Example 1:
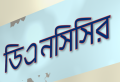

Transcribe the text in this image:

ডিএনসিসির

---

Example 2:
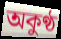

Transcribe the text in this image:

অকুণ্ঠ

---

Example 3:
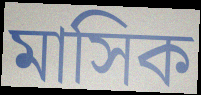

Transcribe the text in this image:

মাসিক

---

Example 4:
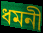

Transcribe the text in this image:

ধমনী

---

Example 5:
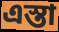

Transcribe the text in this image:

এস্তা